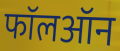
फॉलऑन